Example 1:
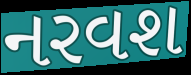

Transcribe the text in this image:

નરવશ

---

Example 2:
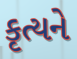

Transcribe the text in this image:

કૃત્યને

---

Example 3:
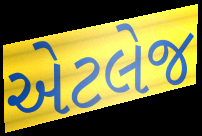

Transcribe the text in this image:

એટલેજ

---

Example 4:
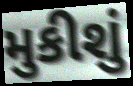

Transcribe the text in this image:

મુકીશું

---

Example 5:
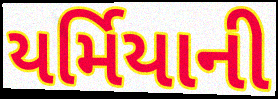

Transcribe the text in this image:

યર્મિયાની